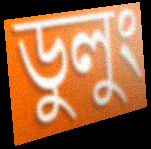
ডুলুং